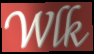
Wlk